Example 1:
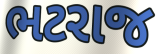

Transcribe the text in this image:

ભટરાજ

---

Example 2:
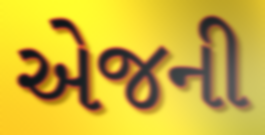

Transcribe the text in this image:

એજની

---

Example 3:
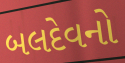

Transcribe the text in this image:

બલદેવનો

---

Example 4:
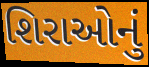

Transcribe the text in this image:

શિરાઓનું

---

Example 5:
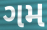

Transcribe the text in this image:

ગમ